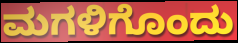
ಮಗಳಿಗೊಂದು